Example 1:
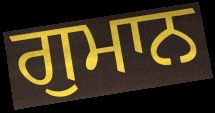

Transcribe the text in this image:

ਗੁਮਾਨ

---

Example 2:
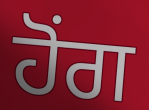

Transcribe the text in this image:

ਹੋਂਗ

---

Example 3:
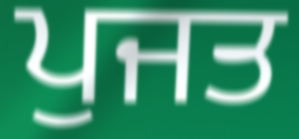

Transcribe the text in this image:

ਪੁਜਤ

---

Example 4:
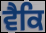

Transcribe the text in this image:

ਵੈਕਿ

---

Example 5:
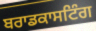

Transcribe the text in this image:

ਬਰਾਡਕਾਸਟਿੰਗ